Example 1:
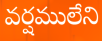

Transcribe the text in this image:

వర్షములేని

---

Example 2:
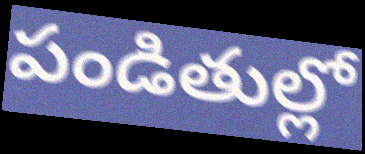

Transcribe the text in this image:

పండితుల్లో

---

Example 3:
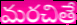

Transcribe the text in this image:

మరచితే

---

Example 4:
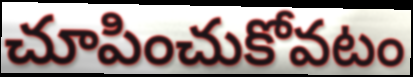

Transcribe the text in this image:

చూపించుకోవటం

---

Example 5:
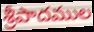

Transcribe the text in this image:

శ్రీపాదముల